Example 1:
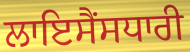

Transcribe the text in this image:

ਲਾਇਸੈਂਸਧਾਰੀ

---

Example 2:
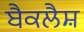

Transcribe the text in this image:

ਬੈਕਲੈਸ਼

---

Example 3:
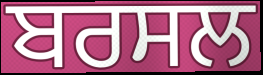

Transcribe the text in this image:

ਬਰਸਲ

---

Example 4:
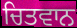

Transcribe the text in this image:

ਚਿਤਵਾਨ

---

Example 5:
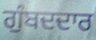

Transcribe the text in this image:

ਗੁੰਬਦਦਾਰ